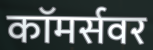
कॉमर्सवर